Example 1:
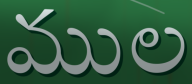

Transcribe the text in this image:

ముల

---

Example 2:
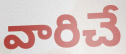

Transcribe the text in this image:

వారిచే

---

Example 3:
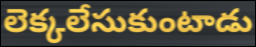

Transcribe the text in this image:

లెక్కలేసుకుంటాడు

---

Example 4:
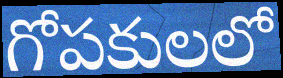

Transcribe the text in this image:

గోపకులలో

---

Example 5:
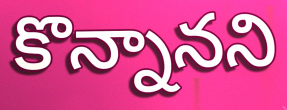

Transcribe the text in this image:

కొన్నానని